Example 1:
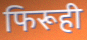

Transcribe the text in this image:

फिरूही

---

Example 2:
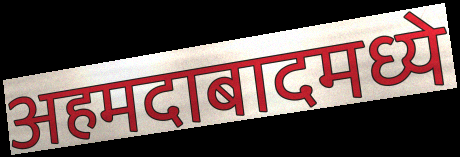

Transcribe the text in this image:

अहमदाबादमध्ये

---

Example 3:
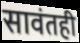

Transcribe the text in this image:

सावंतही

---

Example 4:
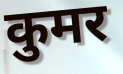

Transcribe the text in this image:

कुमर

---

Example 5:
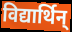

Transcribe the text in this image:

विद्यार्थिन्